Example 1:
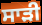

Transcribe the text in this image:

ਸਾੜੀ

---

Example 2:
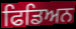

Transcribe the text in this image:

ਫਿਡਿਅਨ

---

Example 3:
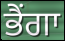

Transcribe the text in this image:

ਭੈਂਗਾ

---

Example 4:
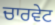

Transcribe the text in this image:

ਚਾਰਵੇਟ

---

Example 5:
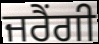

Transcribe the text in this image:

ਜਰੈਂਗੀ